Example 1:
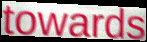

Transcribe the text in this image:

towards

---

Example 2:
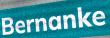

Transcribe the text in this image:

Bernanke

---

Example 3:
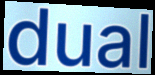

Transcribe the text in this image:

dual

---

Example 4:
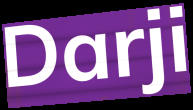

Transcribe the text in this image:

Darji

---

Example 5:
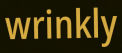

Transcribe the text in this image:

wrinkly